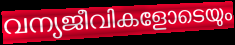
വന്യജീവികളോടെയും